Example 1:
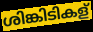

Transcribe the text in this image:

ശിങ്കിടികള്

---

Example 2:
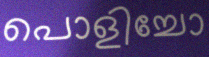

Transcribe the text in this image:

പൊളിച്ചോ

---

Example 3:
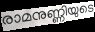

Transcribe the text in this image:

രാമനുണ്ണിയുടെ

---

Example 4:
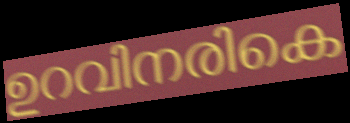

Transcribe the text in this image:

ഉറവിനരികെ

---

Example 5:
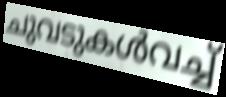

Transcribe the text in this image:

ചുവടുകൾവച്ച്